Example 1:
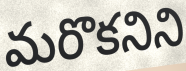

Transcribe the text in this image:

మరొకనిని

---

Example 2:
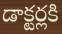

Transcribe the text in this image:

డాక్టర్లకి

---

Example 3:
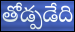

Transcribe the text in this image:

తోడ్పడేది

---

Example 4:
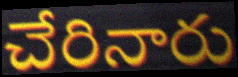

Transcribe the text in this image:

చేరినారు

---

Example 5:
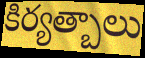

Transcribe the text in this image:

కిర్యత్బాలు